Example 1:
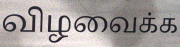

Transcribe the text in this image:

விழவைக்க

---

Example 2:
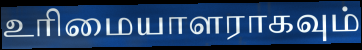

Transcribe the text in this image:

உரிமையாளராகவும்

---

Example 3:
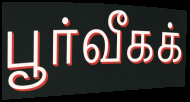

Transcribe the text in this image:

பூர்வீகக்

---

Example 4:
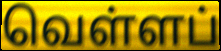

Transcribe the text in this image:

வெள்ளப்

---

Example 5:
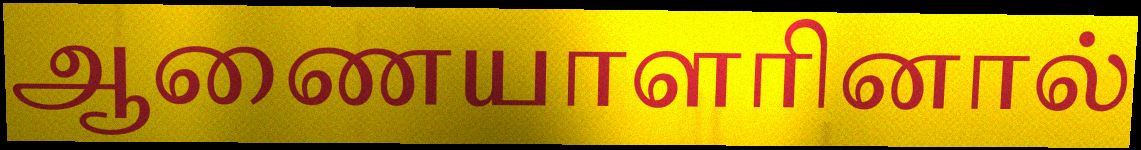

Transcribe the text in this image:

ஆணையாளரினால்